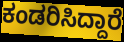
ಕಂಡರಿಸಿದ್ದಾರೆ